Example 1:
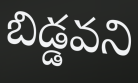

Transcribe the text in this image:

బిడ్డవని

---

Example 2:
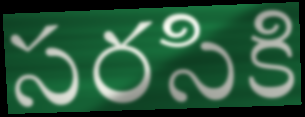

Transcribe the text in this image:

సరసికి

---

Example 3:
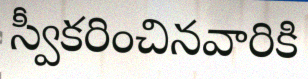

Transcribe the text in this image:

స్వీకరించినవారికి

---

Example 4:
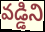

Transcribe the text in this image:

వడ్డిని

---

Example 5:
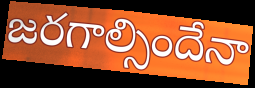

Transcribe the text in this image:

జరగాల్సిందేనా